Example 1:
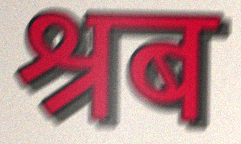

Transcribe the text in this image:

श्रब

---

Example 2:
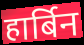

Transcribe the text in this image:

हार्बिन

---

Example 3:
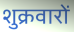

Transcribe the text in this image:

शुक्रवारों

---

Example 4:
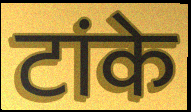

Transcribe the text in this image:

टांके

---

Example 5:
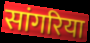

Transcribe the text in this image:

सांगरिया